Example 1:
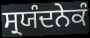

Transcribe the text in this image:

ਸ੍ਰਯੰਦਨੇਕੰ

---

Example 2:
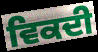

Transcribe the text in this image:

ਵਿਕਦੀ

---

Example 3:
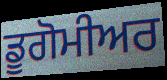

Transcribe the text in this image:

ਡੂਗੋਮੀਅਰ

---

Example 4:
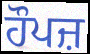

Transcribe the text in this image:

ਹੌਪਜ਼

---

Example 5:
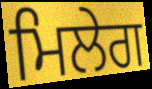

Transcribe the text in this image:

ਮਿਲੇਗ